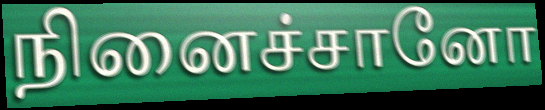
நினைச்சானோ